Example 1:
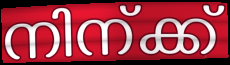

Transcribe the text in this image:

നിന്ക്ക്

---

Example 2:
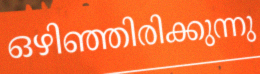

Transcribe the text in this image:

ഒഴിഞ്ഞിരിക്കുന്നു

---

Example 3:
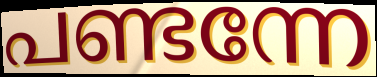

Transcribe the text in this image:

പണ്ടന്നേ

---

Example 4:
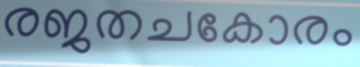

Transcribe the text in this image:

രജതചകോരം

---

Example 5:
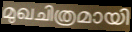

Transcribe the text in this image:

മുഖചിത്രമായി